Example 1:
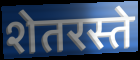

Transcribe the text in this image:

शेतरस्ते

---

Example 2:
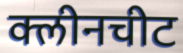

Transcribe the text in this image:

क्लीनचीट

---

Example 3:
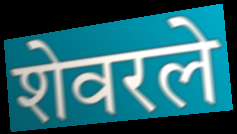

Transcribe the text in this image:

शेवरले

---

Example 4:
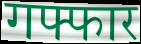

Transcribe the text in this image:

गफ्फार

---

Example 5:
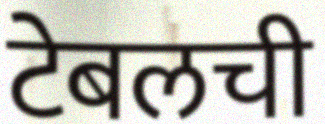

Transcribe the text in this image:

टेबलची